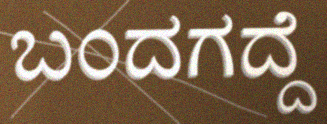
ಬಂದಗದ್ದೆ